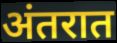
अंतरात